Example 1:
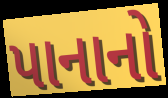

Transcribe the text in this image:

પાનાનો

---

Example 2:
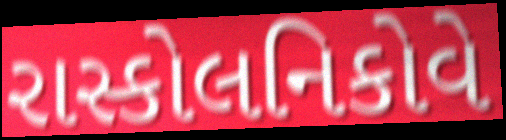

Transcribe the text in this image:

રાસ્કોલનિકોવે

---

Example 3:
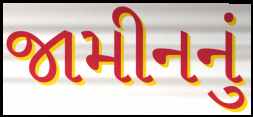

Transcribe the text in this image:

જામીનનું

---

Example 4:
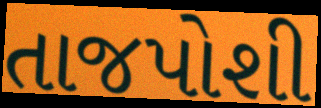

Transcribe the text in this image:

તાજપોશી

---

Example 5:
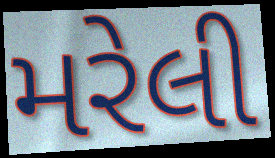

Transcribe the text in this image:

મરેલી